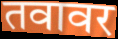
तवावर